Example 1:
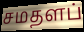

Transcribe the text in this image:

சமதளப்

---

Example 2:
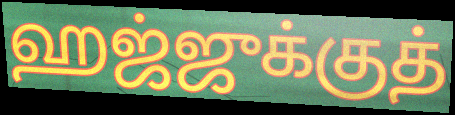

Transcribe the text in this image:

ஹஜ்ஜுக்குத்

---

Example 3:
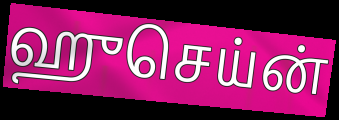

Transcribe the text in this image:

ஹுசெய்ன்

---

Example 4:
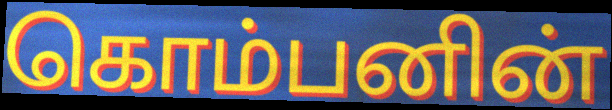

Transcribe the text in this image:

கொம்பனின்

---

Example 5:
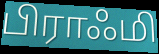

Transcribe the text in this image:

பிராஃமி